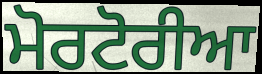
ਮੋਰਟੋਰੀਆ